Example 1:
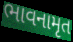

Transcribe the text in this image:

ભાવનામૃત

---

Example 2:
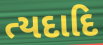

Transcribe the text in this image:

ત્યદાદિ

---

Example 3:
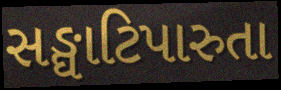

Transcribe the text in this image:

સઙ્ઘાટિપારુતા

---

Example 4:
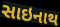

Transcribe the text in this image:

સાઇનાથ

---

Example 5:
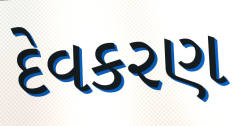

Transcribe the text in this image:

દેવકરણ